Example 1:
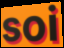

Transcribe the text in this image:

soi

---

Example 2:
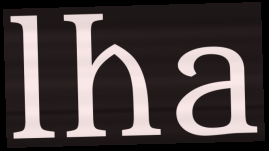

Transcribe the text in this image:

lha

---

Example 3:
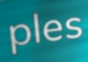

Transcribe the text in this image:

ples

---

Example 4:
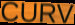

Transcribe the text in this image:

CURV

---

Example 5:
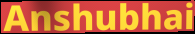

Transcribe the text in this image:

Anshubhai